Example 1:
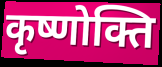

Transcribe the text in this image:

कृष्णोक्ति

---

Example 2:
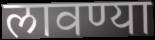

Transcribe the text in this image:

लावण्या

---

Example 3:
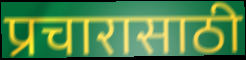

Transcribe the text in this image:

प्रचारासाठी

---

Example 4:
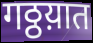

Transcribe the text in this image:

गठ्ठय़ात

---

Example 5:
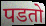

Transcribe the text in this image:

पडतो